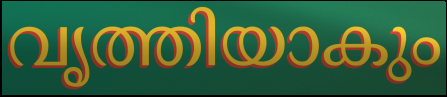
വൃത്തിയാകും